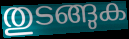
തുടങ്ങുക